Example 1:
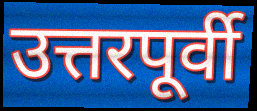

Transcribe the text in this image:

उत्तरपूर्वी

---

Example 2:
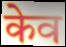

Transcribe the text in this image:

केव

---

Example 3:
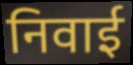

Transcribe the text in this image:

निवाई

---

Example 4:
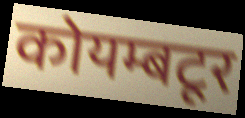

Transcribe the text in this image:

कोयम्‍बटूर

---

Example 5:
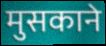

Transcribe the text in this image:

मुसकाने